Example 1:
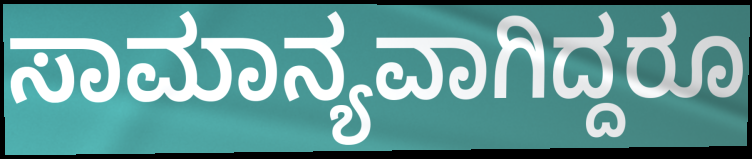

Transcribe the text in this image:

ಸಾಮಾನ್ಯವಾಗಿದ್ದರೂ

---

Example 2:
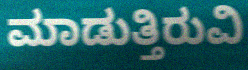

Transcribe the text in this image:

ಮಾಡುತ್ತಿರುವಿ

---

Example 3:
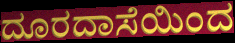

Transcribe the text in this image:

ದೂರದಾಸೆಯಿಂದ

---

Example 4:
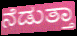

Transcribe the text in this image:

ನೆಡುತ್ತಾ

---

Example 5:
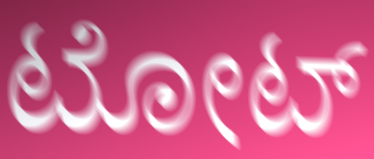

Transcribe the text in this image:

ಟೋಟ್